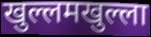
खुल्लमखुल्ला